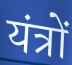
यंत्रों